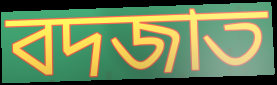
বদজাত